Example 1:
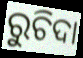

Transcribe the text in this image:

ରୁଚିଦା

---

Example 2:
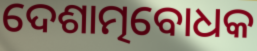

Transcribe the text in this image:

ଦେଶାତ୍ମବୋଧକ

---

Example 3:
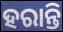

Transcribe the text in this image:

ହରାନ୍ତି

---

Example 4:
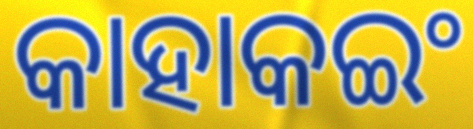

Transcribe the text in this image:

କାହାକଇଂ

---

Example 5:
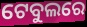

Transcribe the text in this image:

ଟେବୁଲରେ